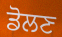
ਡੋਲਣ